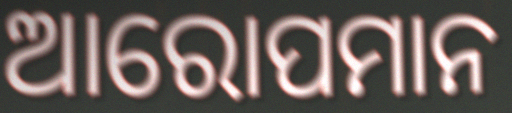
ଆରୋପମାନ